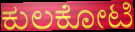
ಕುಲಕೋಟಿ